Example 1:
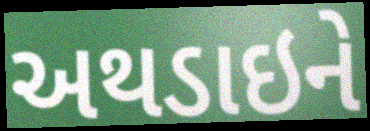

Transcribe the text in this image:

અથડાઇને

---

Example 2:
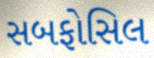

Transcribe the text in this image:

સબફોસિલ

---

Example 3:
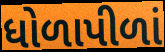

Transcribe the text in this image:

ધોળાપીળાં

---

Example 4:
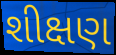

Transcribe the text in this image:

શીક્ષણ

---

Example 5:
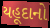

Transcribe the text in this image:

યહૂદાનો